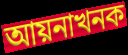
আয়নাখনক